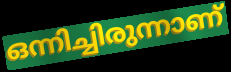
ഒന്നിച്ചിരുന്നാണ്